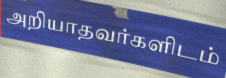
அறியாதவர்களிடம்